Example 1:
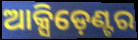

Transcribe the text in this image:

ଆକ୍ସିଡ଼େଣ୍ଟର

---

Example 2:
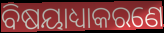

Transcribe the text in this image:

ବିଷୟାଧ୍ୟାକରଣେ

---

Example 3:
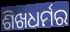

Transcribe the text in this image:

ଶିଖଧର୍ମର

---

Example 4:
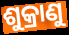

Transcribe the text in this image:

ଶୁକ୍ରାଣୁ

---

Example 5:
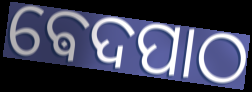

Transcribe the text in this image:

ଵେଦପାଠ